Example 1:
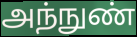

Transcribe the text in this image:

அந்நுண்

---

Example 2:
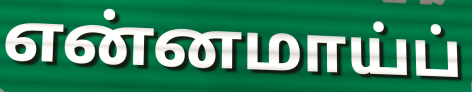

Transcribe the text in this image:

என்னமாய்ப்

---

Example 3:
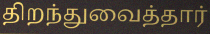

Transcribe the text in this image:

திறந்துவைத்தார்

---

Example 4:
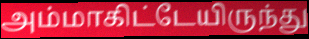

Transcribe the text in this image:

அம்மாகிட்டேயிருந்து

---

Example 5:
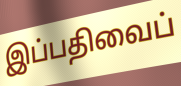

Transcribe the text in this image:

இப்பதிவைப்